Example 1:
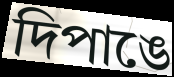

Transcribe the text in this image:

দিপাঙে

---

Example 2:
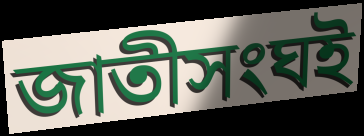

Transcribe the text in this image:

জাতীসংঘই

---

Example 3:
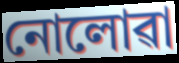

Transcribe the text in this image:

নোলোৱা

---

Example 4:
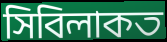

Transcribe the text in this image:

সিবিলাকত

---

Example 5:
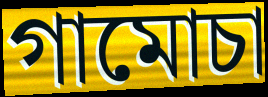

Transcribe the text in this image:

গামোচা